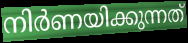
നിർണയിക്കുന്നത്